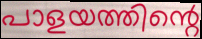
പാളയത്തിന്റെ